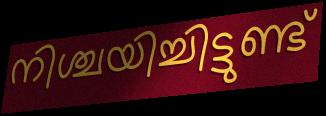
നിശ്ചയിച്ചിട്ടുണ്ട്